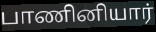
பாணினியார்